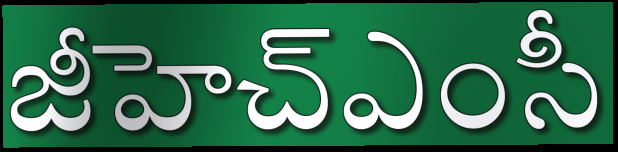
జీహెచ్ఎంసీ